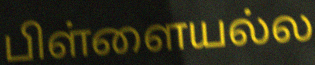
பிள்ளையல்ல